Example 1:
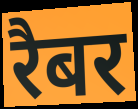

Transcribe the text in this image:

रैबर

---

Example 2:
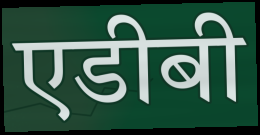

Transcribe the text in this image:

एडीबी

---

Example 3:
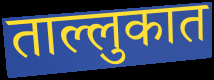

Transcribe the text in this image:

ताल्लुकात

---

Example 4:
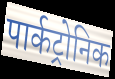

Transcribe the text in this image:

पार्कट्रोनिक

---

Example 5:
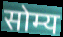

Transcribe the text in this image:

सोम्य